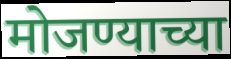
मोजण्याच्या